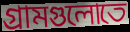
গ্রামগুলোতে